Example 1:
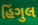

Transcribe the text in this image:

હિંગુલ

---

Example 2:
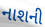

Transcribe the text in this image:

નાશની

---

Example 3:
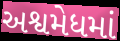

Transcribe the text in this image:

અશ્વમેધમાં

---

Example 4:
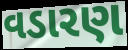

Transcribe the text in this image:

વડારણ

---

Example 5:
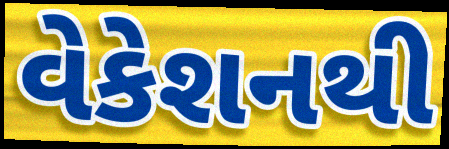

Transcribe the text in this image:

વેકેશનથી